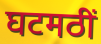
घटमठीं